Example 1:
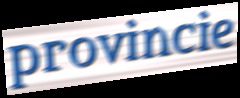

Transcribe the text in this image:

provincie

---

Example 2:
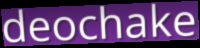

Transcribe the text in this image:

deochake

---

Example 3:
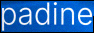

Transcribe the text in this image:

padine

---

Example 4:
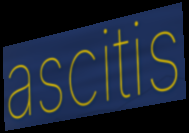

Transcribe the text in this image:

ascitis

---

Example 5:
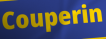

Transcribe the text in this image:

Couperin